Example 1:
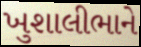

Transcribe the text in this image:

ખુશાલીભાને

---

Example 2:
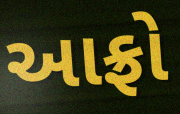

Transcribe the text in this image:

આફ્રો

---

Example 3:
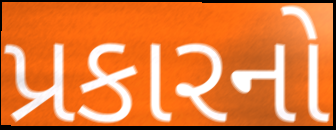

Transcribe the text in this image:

પ્રકારનો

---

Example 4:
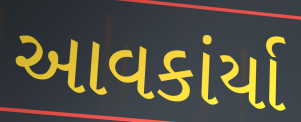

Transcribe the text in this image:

આવકાંર્યા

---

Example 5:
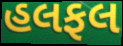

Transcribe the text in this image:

હલફલ